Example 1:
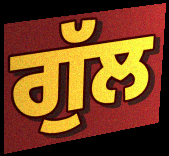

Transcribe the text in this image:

ਗੁੱਲ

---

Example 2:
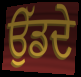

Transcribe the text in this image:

ਉੱਡਦੇ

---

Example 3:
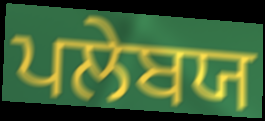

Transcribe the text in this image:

ਪਲੇਬਯ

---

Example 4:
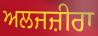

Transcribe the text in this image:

ਅਲਜਜ਼ੀਰਾ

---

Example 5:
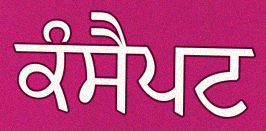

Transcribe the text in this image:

ਕੰਸੈਪਟ